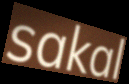
sakal